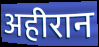
अहीरान